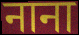
नाना